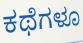
ಕಥೆಗಳೂ